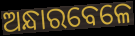
ଅନ୍ଧାରବେଳେ